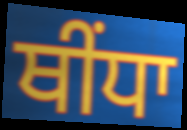
ਥੀਂਧਾ